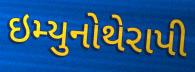
ઇમ્યુનોથેરાપી